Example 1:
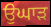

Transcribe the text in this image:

ਉਘਾੜ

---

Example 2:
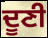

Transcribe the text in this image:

ਦੂਣੀ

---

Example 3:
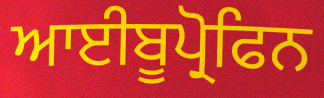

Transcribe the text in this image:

ਆਈਬੂਪ੍ਰੋਫਿਨ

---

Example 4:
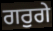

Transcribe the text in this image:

ਗਰੁਗੇ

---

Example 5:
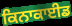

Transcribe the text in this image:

ਕਿਨਾਕਾਈਡ